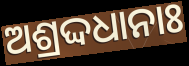
ଅଶ୍ରଦ୍ଦଧାନାଃ